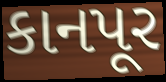
કાનપૂર